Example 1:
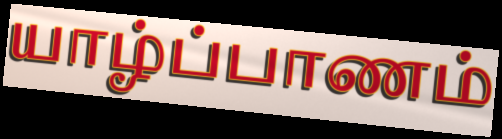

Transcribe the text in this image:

யாழ்ப்பாணம்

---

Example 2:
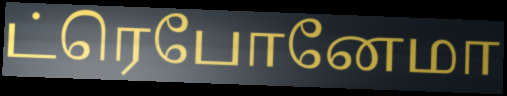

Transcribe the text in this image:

ட்ரெபோனேமா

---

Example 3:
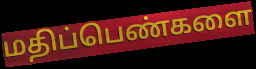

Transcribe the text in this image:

மதிப்பெண்களை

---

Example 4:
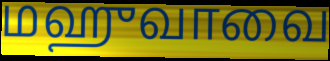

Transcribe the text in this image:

மஹுவாவை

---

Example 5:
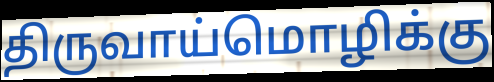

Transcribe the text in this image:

திருவாய்மொழிக்கு